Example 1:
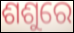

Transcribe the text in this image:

ଶଶୁରେ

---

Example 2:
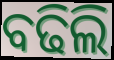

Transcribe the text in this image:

ବଢିଲି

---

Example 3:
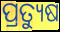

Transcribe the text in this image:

ପ୍ରତ୍ୟୁଷ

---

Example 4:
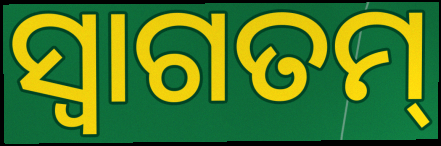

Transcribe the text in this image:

ସ୍ୱାଗତମ୍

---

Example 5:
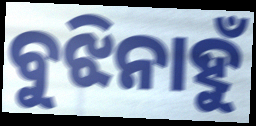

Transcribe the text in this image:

ବୁଝିନାହୁଁ